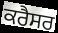
ਕਰੈਸਰ